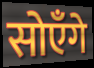
सोएँगे